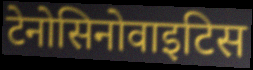
टेनोसिनोवाइटिस